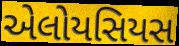
એલોયસિયસ